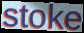
stoke